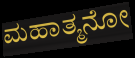
ಮಹಾತ್ಮನೋ